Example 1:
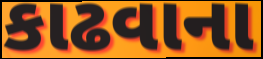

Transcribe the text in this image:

કાઢવાના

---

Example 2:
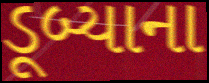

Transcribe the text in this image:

ડૂબ્યાના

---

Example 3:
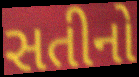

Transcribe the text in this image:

સતીનો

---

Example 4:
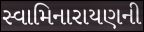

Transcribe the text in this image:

સ્વામિનારાયણની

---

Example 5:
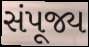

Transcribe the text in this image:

સંપૂજ્ય